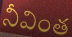
నీవింత